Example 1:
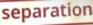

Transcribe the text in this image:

separation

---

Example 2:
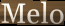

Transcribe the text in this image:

Melo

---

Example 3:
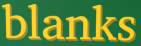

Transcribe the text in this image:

blanks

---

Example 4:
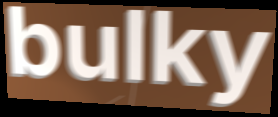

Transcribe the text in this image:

bulky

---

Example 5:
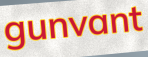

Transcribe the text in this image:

gunvant